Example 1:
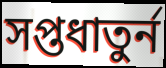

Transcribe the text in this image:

সপ্তধাতুর্ন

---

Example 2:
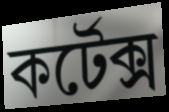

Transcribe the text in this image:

কর্টেক্স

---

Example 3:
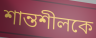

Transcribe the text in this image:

শান্তশীলকে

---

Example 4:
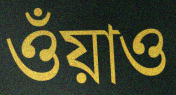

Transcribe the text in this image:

ওঁয়াও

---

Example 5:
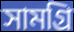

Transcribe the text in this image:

সামগ্রি